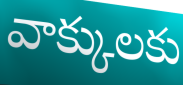
వాక్కులకు